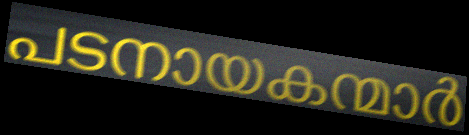
പടനായകന്മാർ